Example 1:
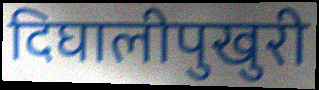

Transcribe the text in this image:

दिघालीपुखुरी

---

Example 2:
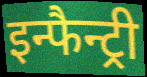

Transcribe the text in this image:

इन्फैन्ट्री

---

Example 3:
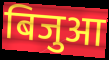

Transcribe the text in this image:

बिजुआ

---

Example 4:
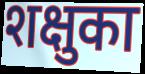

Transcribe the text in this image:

शक्षुका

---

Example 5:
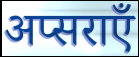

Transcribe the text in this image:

अप्सराएँ